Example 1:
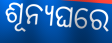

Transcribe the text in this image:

ଶୂନ୍ୟଘରେ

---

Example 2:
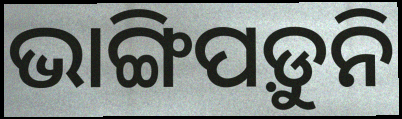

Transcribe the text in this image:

ଭାଙ୍ଗିପଡ଼ୁନି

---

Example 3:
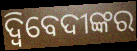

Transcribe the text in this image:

ଦ୍ଵିବେଦୀଙ୍କର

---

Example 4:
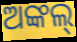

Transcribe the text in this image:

ଅଙ୍କଲ୍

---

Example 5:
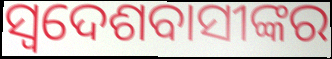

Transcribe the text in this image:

ସ୍ୱଦେଶବାସୀଙ୍କର